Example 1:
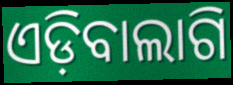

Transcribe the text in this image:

ଏଡ଼ିବାଲାଗି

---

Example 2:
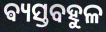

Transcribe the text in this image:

ଵ୍ୟସ୍ତବହୁଳ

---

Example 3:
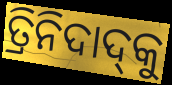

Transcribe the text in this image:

ତ୍ରିନିଦାଦ୍‍କୁ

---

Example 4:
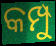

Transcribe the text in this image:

କମ୍ପୁ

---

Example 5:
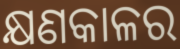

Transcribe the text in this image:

କ୍ଷଣକାଳର